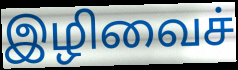
இழிவைச்